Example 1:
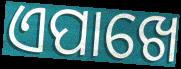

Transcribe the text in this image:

ଏପାଖେ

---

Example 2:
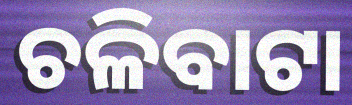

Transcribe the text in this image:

ଚଳିବାଟା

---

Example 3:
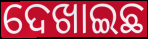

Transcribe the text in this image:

ଦେଖାଇଛ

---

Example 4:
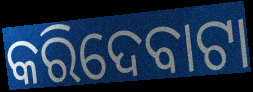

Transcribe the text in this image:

କରିଦେବାଟା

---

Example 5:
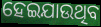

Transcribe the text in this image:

ହେଇଯାଉଥିବ